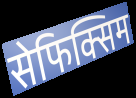
सेफिक्सिम